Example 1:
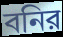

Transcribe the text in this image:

বনির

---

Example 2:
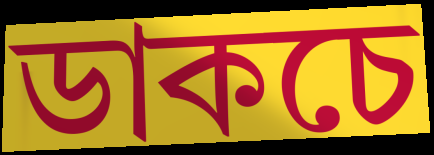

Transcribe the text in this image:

ডাকচে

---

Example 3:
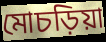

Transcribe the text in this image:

মোচড়িয়া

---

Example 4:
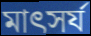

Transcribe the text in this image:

মাৎসর্য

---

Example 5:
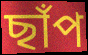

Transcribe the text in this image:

ছাঁপ